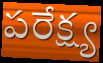
పరేక్ష్య